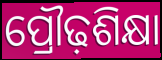
ପ୍ରୌଢ଼ଶିକ୍ଷା